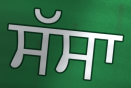
ਸੱਸਾ